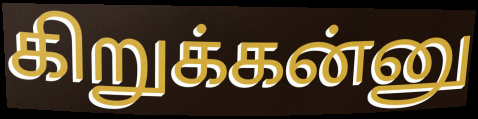
கிறுக்கன்னு